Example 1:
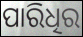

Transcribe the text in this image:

ପାରିଧିର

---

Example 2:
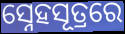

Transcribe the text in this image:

ସ୍ନେହସୂତ୍ରରେ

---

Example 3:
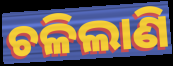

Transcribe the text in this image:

ଚଳିଲାଣି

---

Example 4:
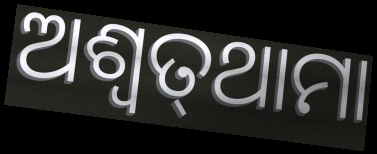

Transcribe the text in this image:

ଅଶ୍ଵତ୍‌ଥାମା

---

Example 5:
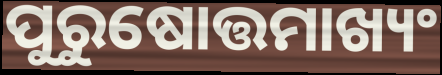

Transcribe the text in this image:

ପୁରୁଷୋତ୍ତମାଖ୍ୟଂ